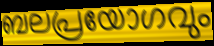
ബലപ്രയോഗവും